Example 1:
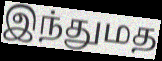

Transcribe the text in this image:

இந்துமத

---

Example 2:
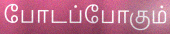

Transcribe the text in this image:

போடப்போகும்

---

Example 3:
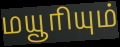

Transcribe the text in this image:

மயூரியும்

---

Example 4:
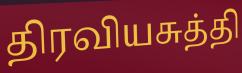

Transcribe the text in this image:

திரவியசுத்தி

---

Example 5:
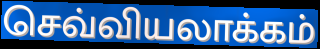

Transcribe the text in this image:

செவ்வியலாக்கம்